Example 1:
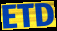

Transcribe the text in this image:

ETD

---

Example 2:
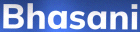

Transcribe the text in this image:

Bhasani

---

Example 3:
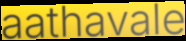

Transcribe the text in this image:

aathavale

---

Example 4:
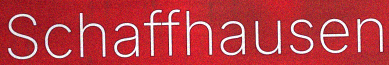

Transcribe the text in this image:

Schaffhausen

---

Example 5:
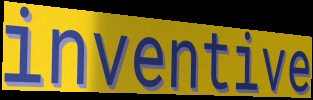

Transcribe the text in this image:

inventive